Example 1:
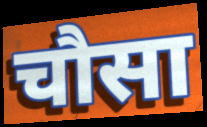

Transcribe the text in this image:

चौसा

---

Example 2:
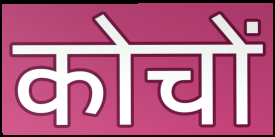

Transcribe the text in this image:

कोचों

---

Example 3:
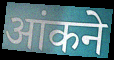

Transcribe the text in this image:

आंकने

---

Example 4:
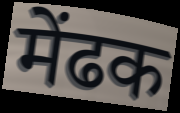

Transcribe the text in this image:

मेंढक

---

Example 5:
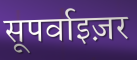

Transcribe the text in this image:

सूपर्वाइज़र